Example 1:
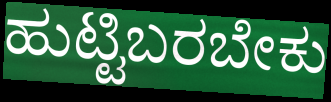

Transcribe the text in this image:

ಹುಟ್ಟಿಬರಬೇಕು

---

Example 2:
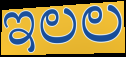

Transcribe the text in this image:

ಇಲಲ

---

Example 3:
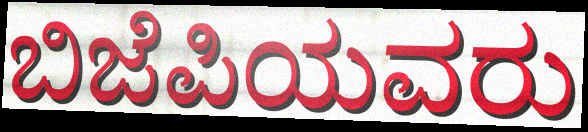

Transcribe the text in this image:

ಬಿಜೆಪಿಯವರು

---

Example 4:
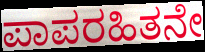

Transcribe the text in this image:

ಪಾಪರಹಿತನೇ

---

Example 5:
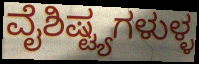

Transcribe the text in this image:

ವೈಶಿಷ್ಟ್ಯಗಳುಳ್ಳ